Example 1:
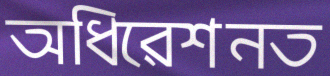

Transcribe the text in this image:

অধিৱেশনত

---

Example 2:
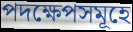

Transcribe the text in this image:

পদক্ষেপসমূহে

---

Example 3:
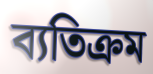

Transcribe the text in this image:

ব্যতিক্ৰম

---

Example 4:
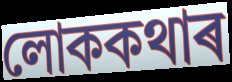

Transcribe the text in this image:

লোককথাৰ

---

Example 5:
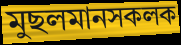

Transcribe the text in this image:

মুছলমানসকলক